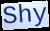
Shy